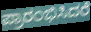
ಪ್ರಾರಂಭಿಸಿದರೆ